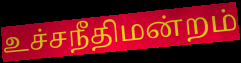
உச்சநீதிமன்றம்